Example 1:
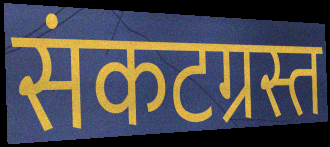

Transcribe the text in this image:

संकटग्रस्‍त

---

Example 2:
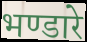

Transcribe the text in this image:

भण्डारे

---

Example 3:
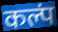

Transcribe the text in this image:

कल्पं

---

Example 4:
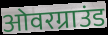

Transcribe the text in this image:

ओवरग्राउंड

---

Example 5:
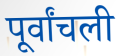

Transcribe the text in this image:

पूर्वांचली